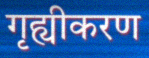
गृह्यीकरण